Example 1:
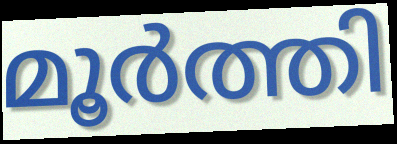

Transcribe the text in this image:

മൂർത്തി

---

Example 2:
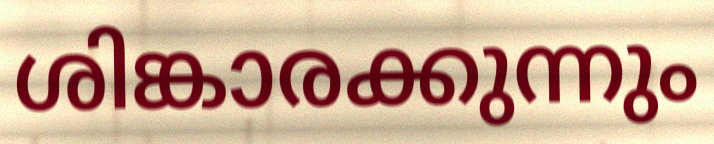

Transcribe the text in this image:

ശിങ്കാരക്കുന്നും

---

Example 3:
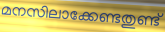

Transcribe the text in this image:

മനസിലാക്കേണ്ടതുണ്ട്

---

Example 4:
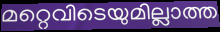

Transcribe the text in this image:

മറ്റെവിടെയുമില്ലാത്ത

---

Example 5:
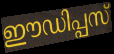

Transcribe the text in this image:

ഈഡിപ്പസ്